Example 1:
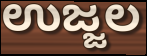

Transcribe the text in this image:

ಉಜ್ಜಲ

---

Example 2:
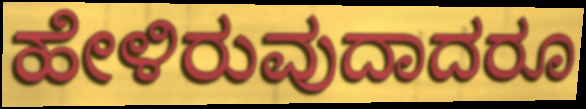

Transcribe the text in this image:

ಹೇಳಿರುವುದಾದರೂ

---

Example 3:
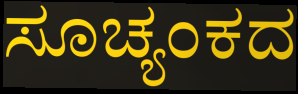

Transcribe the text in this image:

ಸೂಚ್ಯಂಕದ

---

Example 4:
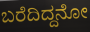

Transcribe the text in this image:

ಬರೆದಿದ್ದನೋ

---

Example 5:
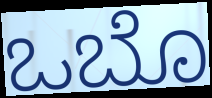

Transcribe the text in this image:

ಒಬೊ